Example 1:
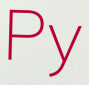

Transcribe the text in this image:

Py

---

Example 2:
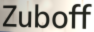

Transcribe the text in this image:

Zuboff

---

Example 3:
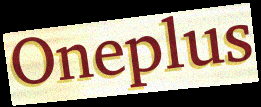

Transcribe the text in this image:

Oneplus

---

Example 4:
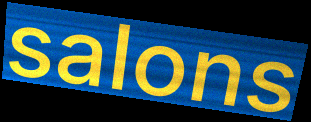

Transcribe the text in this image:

salons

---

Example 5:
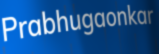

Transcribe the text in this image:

Prabhugaonkar